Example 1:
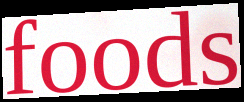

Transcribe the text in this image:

foods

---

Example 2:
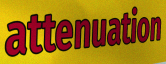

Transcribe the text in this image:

attenuation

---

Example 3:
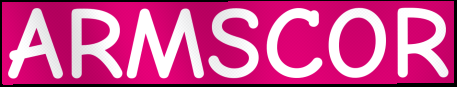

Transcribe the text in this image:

ARMSCOR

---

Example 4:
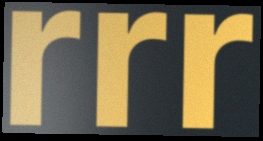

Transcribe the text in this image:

rrr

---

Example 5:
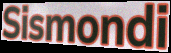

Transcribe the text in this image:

Sismondi